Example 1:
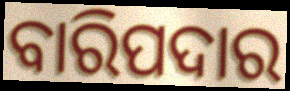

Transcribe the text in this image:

ବାରିପଦାର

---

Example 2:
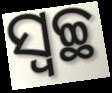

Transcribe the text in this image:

ସ୍ବଚ୍ଛ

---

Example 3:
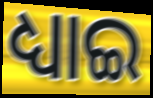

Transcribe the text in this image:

ଧ୍ୟାଇ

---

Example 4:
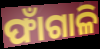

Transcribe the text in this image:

ଫାଁଗାଳି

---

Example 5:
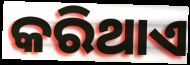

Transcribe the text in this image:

କରିଥାଏ